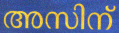
അസിന്